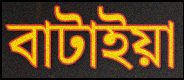
বাটাইয়া